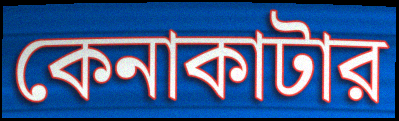
কেনাকাটার